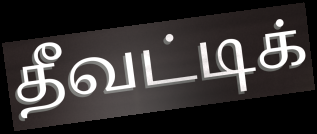
தீவட்டிக்